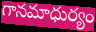
గానమాధుర్యం